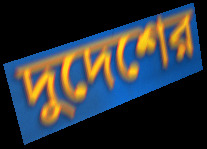
দুদেশের